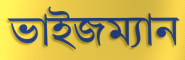
ভাইজম্যান